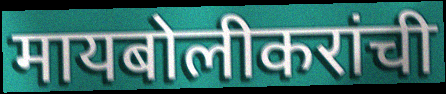
मायबोलीकरांची